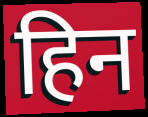
हिन